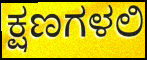
ಕ್ಷಣಗಳಲಿ